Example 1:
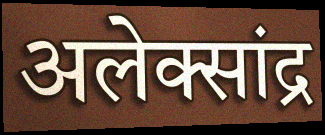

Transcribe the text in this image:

अलेक्सांद्र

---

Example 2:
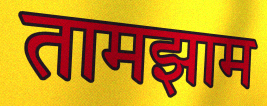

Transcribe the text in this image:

तामझाम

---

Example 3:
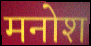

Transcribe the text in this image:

मनोश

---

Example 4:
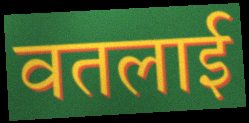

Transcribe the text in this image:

वतलाई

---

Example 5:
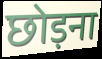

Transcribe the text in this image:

छोड़ना